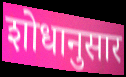
शोधानुसार